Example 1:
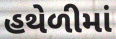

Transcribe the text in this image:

હથેળીમાં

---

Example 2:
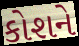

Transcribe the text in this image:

કોશને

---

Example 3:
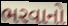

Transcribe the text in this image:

ભરવાનો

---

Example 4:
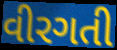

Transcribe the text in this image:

વીરગતી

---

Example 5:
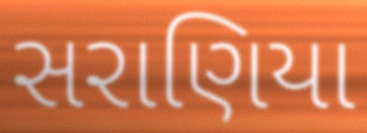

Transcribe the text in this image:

સરાણિયા